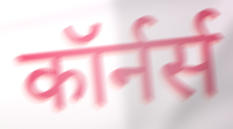
कॉर्नर्स